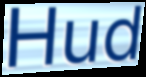
Hud